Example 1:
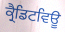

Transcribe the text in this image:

ਕ੍ਰੈਡਿਟਵਿਊ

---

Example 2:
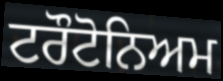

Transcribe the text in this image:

ਟਰੌਟੋਨਿਅਮ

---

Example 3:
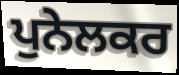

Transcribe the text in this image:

ਪੁਨੇਲਕਰ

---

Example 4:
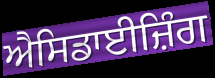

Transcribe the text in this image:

ਐਸਿਡਾਈਜ਼ਿੰਗ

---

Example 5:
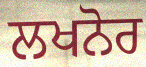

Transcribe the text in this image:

ਲਖਨੋਰ